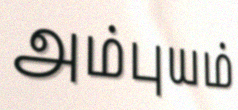
அம்புயம்